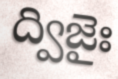
ద్విజైః